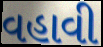
વહાવી